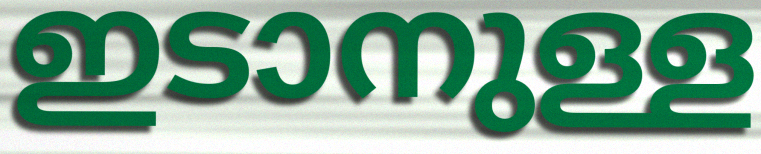
ഇടാനുള്ള